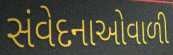
સંવેદનાઓવાળી